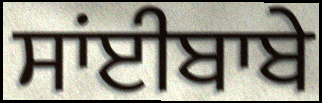
ਸਾਂਈਬਾਬੇ